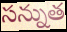
సన్నుత